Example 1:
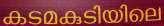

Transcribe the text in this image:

കടമകുടിയിലെ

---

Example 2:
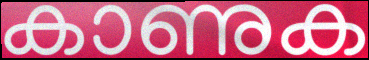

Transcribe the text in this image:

കാണുക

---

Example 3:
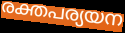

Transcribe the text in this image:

രക്തപര്യയന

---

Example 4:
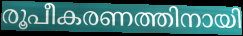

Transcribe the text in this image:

രൂപീകരണത്തിനായി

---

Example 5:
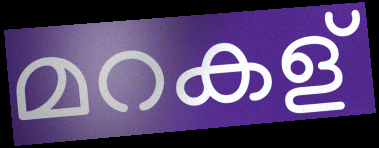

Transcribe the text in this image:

മറകള്